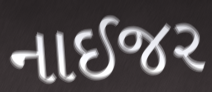
નાઈજર